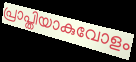
പ്രാപ്തിയാകുവോളം